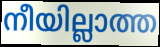
നീയില്ലാത്ത